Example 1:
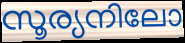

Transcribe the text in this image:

സൂര്യനിലോ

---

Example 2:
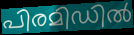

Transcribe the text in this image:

പിരമിഡിൽ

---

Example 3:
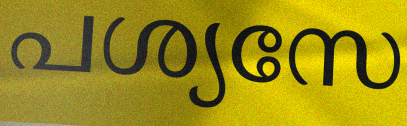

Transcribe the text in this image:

പശ്യസേ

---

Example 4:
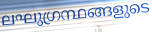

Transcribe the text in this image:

ലഘുഗ്രന്ഥങ്ങളുടെ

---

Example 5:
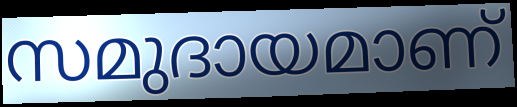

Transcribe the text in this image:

സമുദായമാണ്